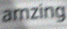
amzing